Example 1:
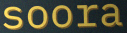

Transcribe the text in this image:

soora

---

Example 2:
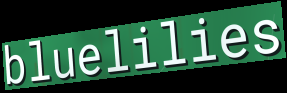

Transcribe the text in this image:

bluelilies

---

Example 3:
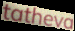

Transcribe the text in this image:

tatheva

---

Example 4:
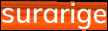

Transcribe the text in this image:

surarige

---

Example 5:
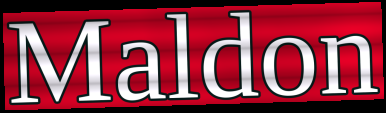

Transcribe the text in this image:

Maldon